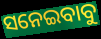
ସନେଇବାବୁ